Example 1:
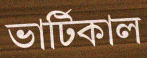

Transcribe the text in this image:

ভার্টিকাল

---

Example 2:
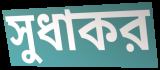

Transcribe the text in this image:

সুধাকর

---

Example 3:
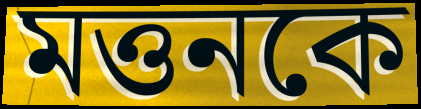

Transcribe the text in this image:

মত্তনকে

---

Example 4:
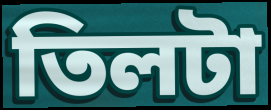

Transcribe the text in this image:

তিলটা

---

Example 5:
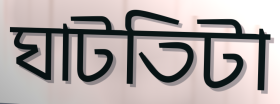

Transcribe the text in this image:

ঘাটতিটা